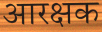
आरक्षक